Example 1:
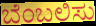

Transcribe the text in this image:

ಬೆಂಬಲಿಸು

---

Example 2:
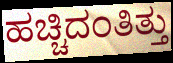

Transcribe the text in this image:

ಹಚ್ಚಿದಂತಿತ್ತು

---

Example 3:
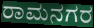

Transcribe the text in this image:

ರಾಮನಗರ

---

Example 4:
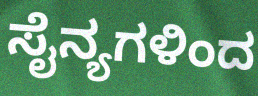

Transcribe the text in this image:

ಸೈನ್ಯಗಳಿಂದ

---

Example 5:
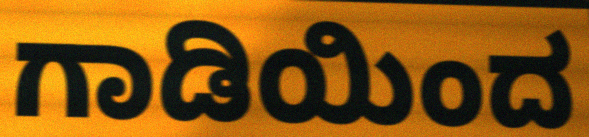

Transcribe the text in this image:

ಗಾಡಿಯಿಂದ